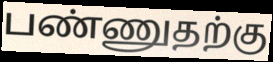
பண்ணுதற்கு